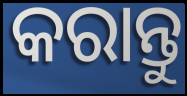
କରାନ୍ତୁ